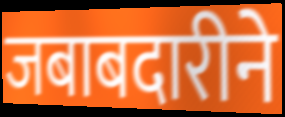
जबाबदारीने